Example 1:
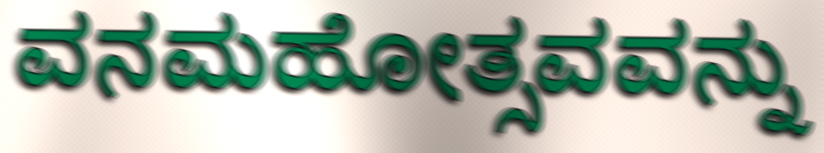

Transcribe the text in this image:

ವನಮಹೋತ್ಸವವನ್ನು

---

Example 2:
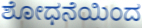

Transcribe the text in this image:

ಶೋಧನೆಯಿಂದ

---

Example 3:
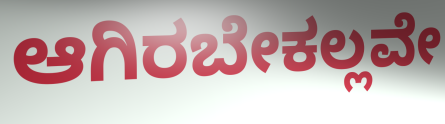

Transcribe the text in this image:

ಆಗಿರಬೇಕಲ್ಲವೇ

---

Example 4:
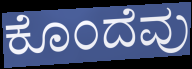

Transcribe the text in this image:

ಕೊಂದೆವು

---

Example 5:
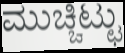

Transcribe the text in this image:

ಮುಚ್ಚಿಟ್ಟು